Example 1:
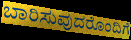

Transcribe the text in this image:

ಬಾರಿಸುವುದರೊಂದಿಗೆ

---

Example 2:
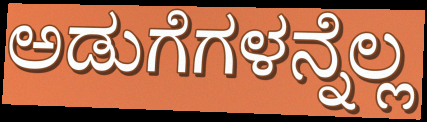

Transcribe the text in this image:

ಅಡುಗೆಗಳನ್ನೆಲ್ಲ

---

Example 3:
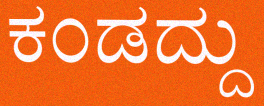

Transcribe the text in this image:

ಕಂಡದ್ದು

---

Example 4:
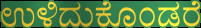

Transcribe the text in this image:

ಉಳಿದುಕೊಂಡರೆ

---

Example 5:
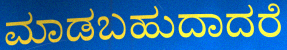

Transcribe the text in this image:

ಮಾಡಬಹುದಾದರೆ